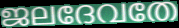
ജലദേവതേ